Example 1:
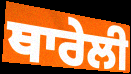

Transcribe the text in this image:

ਥਾਰੇਲੀ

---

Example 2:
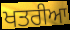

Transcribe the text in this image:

ਖਤਰੀਆ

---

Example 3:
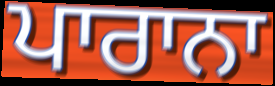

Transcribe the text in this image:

ਪਾਰਾਨਾ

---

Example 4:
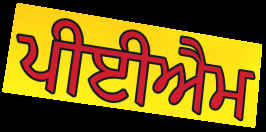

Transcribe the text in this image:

ਪੀਈਐਮ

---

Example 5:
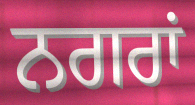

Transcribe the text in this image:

ਨਗਰਾਂ